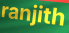
ranjith